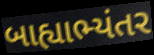
બાહ્યાભ્યંતર